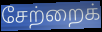
சேற்றைக்